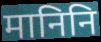
मानिनि